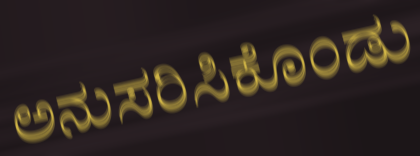
ಅನುಸರಿಸಿಕೊಂಡು